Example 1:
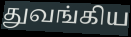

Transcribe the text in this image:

துவங்கிய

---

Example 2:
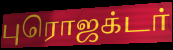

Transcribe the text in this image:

புரொஜக்டர்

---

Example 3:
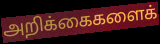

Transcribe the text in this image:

அறிக்கைகளைக்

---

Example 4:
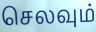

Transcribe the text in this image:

செலவும்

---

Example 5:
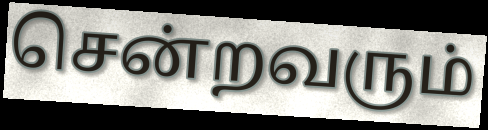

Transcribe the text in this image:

சென்றவரும்